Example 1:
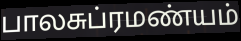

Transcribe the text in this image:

பாலசுப்ரமண்யம்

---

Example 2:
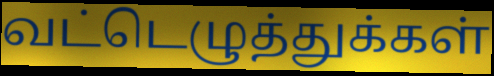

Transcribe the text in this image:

வட்டெழுத்துக்கள்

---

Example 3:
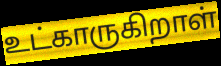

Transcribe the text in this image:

உட்காருகிறாள்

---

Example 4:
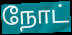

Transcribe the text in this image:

நோட்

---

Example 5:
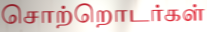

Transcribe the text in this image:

சொற்றொடர்கள்